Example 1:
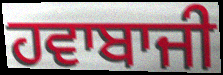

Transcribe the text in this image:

ਹਵਾਬਾਜੀ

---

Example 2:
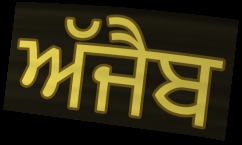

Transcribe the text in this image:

ਅੱਜੈਬ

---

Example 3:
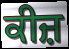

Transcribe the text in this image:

ਕੀਜ਼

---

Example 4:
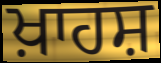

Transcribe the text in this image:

ਖ਼ਾਹਸ਼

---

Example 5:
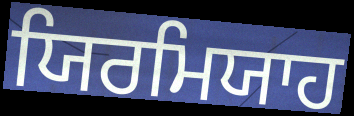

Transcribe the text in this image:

ਯਿਰਮਿਯਾਹ